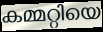
കമ്മറ്റിയെ